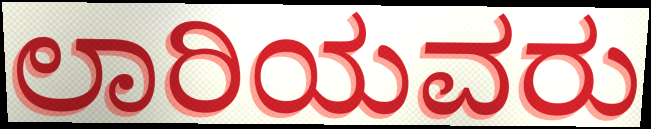
ಲಾರಿಯವರು